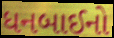
ધનબાઈનો